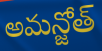
అమన్జోత్